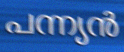
പന്ന്യൻ